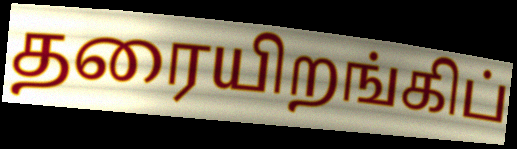
தரையிறங்கிப்